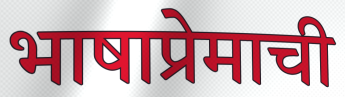
भाषाप्रेमाची